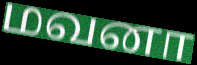
மவனா